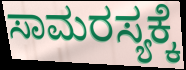
ಸಾಮರಸ್ಯಕ್ಕೆ